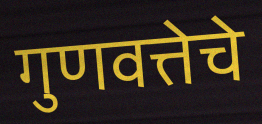
गुणवत्तेचे